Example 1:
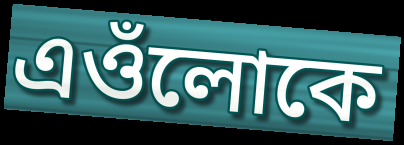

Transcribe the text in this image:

এওঁলোকে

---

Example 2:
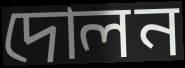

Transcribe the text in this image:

দোলন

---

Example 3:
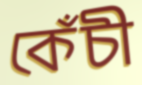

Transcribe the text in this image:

কেঁচী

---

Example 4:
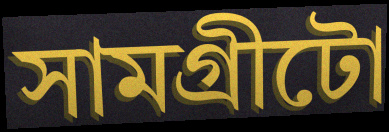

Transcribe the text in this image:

সামগ্ৰীটো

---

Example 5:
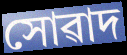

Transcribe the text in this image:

সোৱাদ